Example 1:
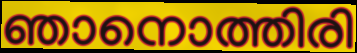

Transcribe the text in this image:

ഞാനൊത്തിരി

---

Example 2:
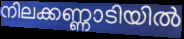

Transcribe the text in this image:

നിലക്കണ്ണാടിയിൽ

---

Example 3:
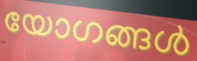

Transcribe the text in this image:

യോഗങ്ങൾ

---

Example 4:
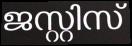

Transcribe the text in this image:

ജസ്റ്റിസ്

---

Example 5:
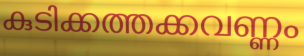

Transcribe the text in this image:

കുടിക്കത്തക്കവണ്ണം